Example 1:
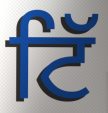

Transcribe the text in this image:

ਟਿੱ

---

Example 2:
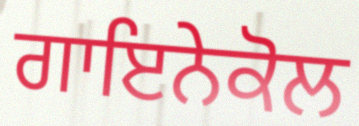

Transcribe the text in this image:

ਗਾਇਨੇਕੋਲ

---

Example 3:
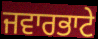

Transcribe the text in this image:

ਜਵਾਰਭਾਟੇ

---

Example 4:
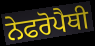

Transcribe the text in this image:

ਨੇਫਰੋਪੈਥੀ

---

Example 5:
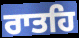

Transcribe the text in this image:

ਰਾਤਹਿ